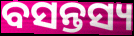
ବସନ୍ତସ୍ୟ